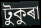
টুকুৰা